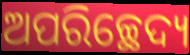
ଅପରିଚ୍ଛେଦ୍ୟ